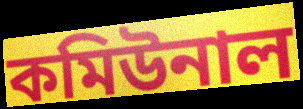
কমিউনাল